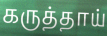
கருத்தாய்